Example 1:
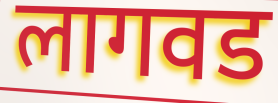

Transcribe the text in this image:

लागवड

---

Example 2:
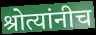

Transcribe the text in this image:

श्रोत्यांनीच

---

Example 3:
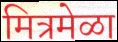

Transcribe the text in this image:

मित्रमेळा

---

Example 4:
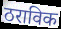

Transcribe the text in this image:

ठराविक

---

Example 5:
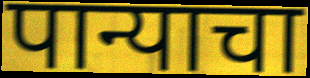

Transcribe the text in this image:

पान्याचा